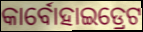
କାର୍ବୋହାଇଡ୍ରେଟ